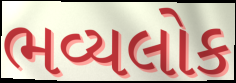
ભવ્યલોક